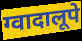
ग्वादालूपे